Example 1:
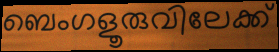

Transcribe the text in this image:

ബെംഗളൂരുവിലേക്ക്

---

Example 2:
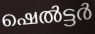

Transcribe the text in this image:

ഷെൽട്ടർ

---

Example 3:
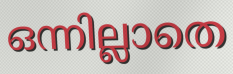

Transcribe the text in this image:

ഒന്നില്ലാതെ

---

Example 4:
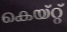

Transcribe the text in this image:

കെയ്റ്റ്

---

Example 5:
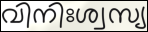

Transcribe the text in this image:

വിനിഃശ്വസ്യ